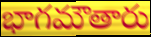
భాగమౌతారు